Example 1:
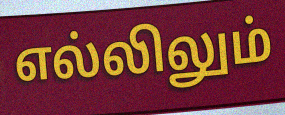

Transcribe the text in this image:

எல்லிலும்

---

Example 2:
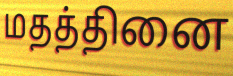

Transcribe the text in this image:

மதத்தினை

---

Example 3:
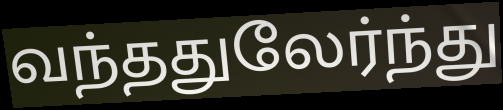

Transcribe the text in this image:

வந்ததுலேர்ந்து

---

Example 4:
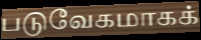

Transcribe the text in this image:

படுவேகமாகக்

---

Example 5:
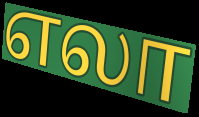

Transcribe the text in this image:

எலா